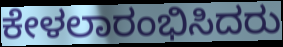
ಕೇಳಲಾರಂಭಿಸಿದರು